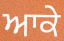
ਆਕੇ